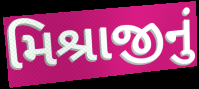
મિશ્રાજીનું